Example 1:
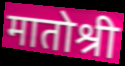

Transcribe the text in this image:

मातोश्री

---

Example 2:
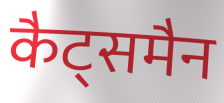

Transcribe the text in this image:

कैट्समैन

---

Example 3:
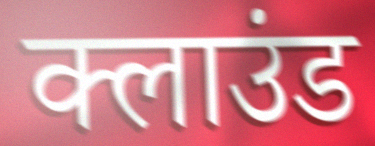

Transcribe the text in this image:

क्लाउंड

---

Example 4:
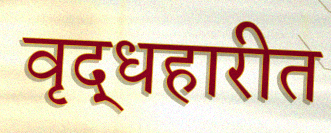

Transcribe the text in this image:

वृद्धहारीत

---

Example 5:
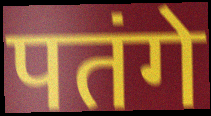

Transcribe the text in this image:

पतंगे